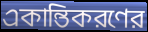
একান্তিকরণের